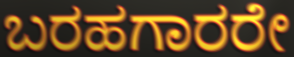
ಬರಹಗಾರರೇ